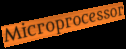
Microprocessor